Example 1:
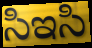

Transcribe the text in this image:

సిఇసి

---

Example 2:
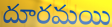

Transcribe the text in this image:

దూరమయి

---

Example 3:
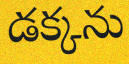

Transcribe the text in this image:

డక్కను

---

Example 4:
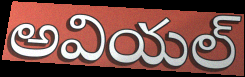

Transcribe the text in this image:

అవియల్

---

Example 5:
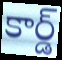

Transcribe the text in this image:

కార్డ్